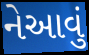
નેઆવું